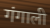
गंगाली